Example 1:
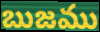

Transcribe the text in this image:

బుజము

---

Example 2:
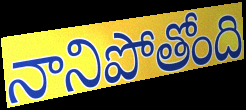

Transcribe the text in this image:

నానిపోతోంది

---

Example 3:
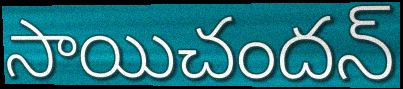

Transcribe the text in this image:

సాయిచందన్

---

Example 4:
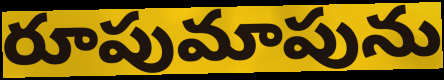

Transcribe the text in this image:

రూపుమాపును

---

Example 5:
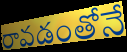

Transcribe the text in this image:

రావడంతోనే